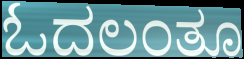
ಓದಲಂತೂ